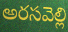
అరసవెల్లి